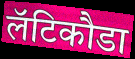
लॅटिकौडा